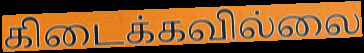
கிடைக்கவில்லை